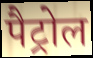
पैट्रोल